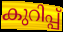
കുറിപ്പ്